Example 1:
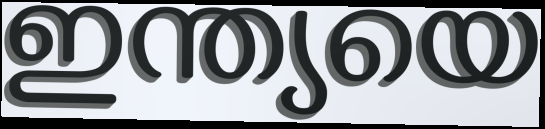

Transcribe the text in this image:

ഇന്ത്യയെ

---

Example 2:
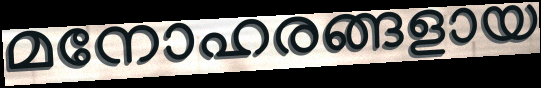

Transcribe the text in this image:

മനോഹരങ്ങളായ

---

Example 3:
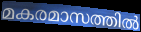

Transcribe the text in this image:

മകരമാസത്തിൽ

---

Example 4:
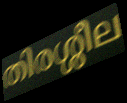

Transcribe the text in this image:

തിരശ്ശീല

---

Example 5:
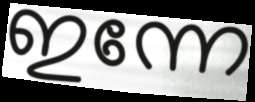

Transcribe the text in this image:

ഇന്നേ